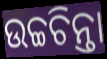
ଉଚ୍ଚଚିନ୍ତା